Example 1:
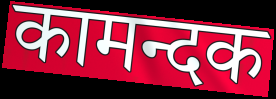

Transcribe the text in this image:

कामन्दक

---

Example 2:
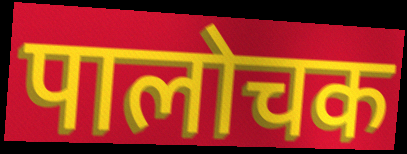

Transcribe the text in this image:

पालोचक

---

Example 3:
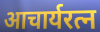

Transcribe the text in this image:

आचार्यरत्न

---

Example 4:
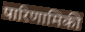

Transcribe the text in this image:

पारिणामिकी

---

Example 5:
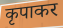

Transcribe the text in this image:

कृपाकर